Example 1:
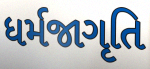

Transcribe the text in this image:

ધર્મજાગૃતિ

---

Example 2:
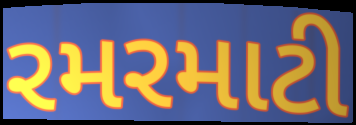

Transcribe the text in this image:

રમરમાટી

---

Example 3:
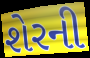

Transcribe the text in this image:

શેરની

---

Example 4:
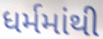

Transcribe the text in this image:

ધર્મમાંથી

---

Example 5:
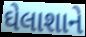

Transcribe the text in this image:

ઘેલાશાને